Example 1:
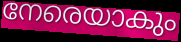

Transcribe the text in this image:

നേരെയാകും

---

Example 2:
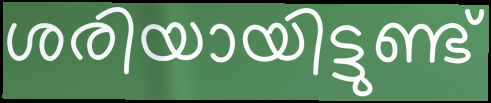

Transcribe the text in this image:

ശരിയായിട്ടുണ്ട്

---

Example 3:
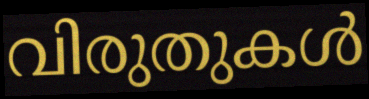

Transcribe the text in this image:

വിരുതുകൾ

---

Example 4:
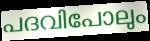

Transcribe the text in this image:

പദവിപോലും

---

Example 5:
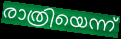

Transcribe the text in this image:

രാത്രിയെന്ന്